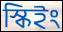
স্কিইং